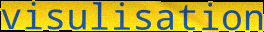
visulisation